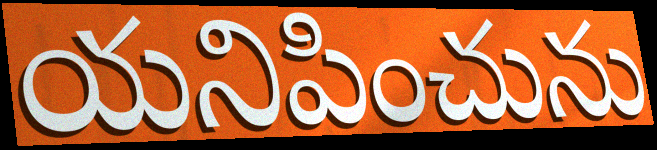
యనిపించును